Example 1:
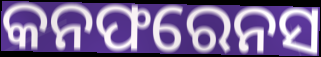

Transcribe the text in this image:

କନଫରେନସ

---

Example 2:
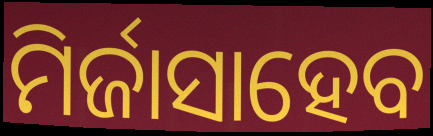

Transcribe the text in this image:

ମିର୍ଜାସାହେବ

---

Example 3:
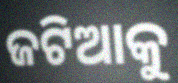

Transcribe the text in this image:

ଜଟିଆକୁ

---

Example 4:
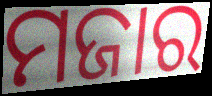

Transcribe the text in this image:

ମଜାର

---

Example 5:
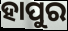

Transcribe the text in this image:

ହାପୁର